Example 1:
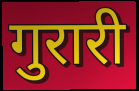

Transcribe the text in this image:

गुरारी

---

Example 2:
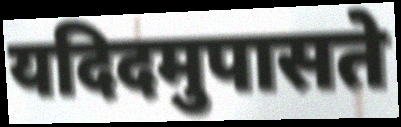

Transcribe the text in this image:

यदिदमुपासते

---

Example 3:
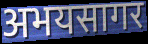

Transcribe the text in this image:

अभयसागर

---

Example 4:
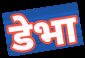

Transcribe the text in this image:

डेभा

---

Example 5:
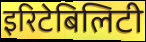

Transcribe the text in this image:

इरिटेबिलिटी